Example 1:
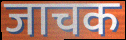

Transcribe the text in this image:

जाचक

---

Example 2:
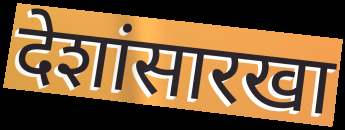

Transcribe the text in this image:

देशांसारखा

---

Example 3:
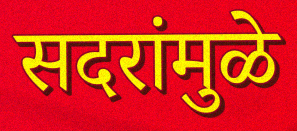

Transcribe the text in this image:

सदरांमुळे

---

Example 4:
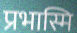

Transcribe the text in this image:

प्रभास्मि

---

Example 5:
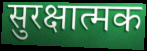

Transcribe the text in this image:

सुरक्षात्मक